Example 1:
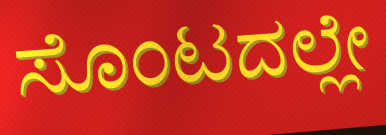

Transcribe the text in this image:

ಸೊಂಟದಲ್ಲೇ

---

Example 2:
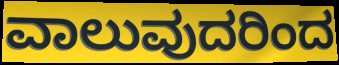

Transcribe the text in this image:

ವಾಲುವುದರಿಂದ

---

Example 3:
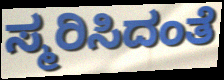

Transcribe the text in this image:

ಸ್ಮರಿಸಿದಂತೆ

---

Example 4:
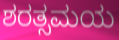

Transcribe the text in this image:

ಶರತ್ಸಮಯ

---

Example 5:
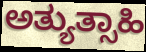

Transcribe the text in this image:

ಅತ್ಯುತ್ಸಾಹಿ